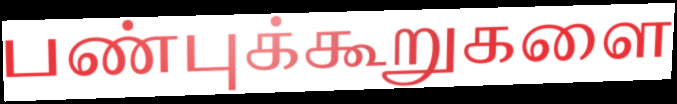
பண்புக்கூறுகளை